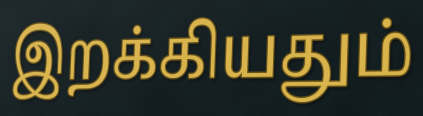
இறக்கியதும்